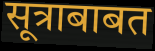
सूत्राबाबत